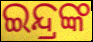
ଇନ୍ଦ୍ରଙ୍କ